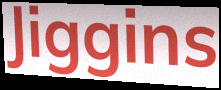
Jiggins